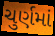
ચુર્ણમાં